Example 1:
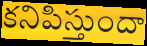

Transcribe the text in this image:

కనిపిస్తుందా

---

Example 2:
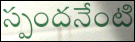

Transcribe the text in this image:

స్పందనేంటి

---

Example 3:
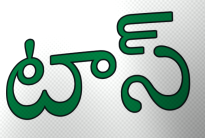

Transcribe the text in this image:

టాస్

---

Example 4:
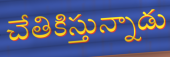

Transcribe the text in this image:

చేతికిస్తున్నాడు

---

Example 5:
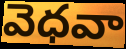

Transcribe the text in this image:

వెధవా